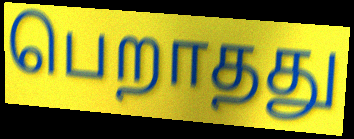
பெறாதது